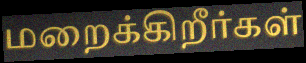
மறைக்கிறீர்கள்